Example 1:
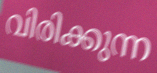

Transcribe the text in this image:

വിരിക്കുന്ന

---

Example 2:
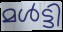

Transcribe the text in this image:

മൾട്ടി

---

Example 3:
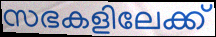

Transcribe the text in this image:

സഭകളിലേക്ക്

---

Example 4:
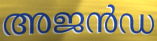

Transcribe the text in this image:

അജൻഡ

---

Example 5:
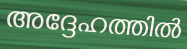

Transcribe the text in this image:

അദ്ദേഹത്തിൽ